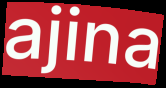
ajina